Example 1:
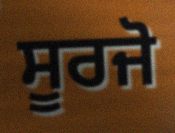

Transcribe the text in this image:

ਸੂਰਜੋ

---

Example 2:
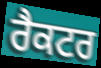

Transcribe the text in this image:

ਰੈਕਟਰ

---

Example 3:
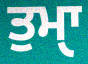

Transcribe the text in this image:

ਤੁਮਾੑ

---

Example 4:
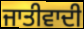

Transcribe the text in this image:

ਜਾਤੀਵਾਦੀ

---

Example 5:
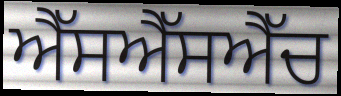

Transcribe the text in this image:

ਐੱਸਐੱਸਐੱਚ